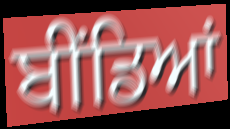
ਬੀਂਡਿਆਂ